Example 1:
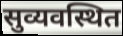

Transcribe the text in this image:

सुव्यवस्थित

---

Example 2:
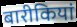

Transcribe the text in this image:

बारीकियां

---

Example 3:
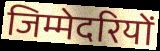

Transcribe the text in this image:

जिम्मेदरियों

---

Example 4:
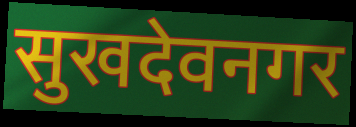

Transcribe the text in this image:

सुखदेवनगर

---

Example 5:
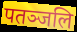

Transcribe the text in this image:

पतञ्जलि